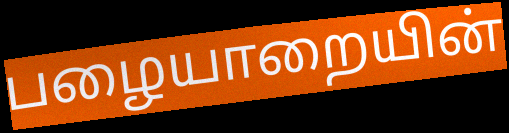
பழையாறையின்